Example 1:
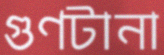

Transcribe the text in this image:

গুণটানা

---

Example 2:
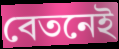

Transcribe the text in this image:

বেতনেই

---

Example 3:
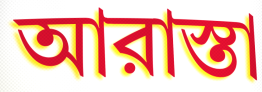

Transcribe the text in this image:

আরাস্তা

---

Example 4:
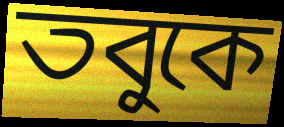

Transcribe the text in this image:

তবুকে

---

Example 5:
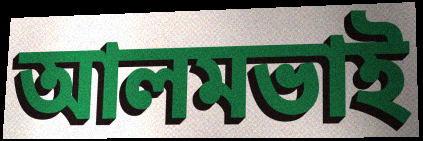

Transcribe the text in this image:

আলমভাই